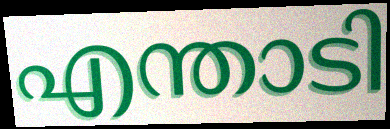
എന്താടി